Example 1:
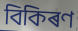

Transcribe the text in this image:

বিকিৰণ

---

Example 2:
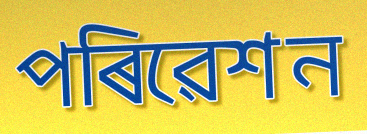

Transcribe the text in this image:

পৰিৱেশন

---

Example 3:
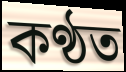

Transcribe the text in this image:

কণ্ঠত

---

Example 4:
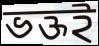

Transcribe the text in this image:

ভক্তই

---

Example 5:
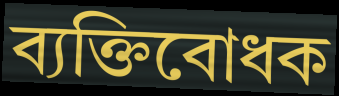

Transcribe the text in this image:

ব্যক্তিবোধক